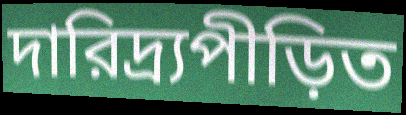
দারিদ্র্যপীড়িত